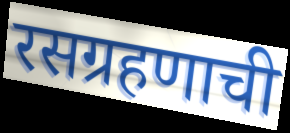
रसग्रहणाची